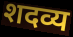
शदव्य